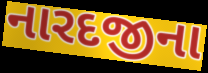
નારદજીના